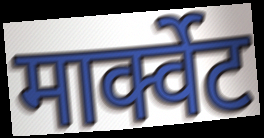
मार्क्वेट